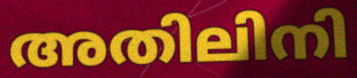
അതിലിനി